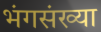
भंगसंख्या